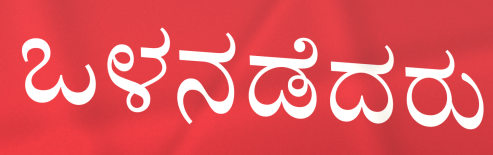
ಒಳನಡೆದರು